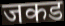
जकड